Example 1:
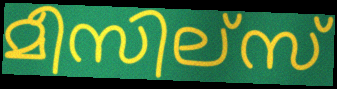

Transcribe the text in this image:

മീസില്സ്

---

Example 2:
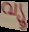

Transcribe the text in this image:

വ്യൂ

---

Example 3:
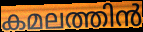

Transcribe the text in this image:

കമലത്തിൻ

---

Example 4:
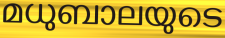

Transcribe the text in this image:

മധുബാലയുടെ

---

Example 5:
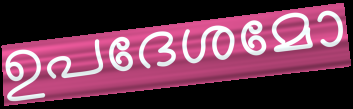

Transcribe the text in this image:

ഉപദേശമോ